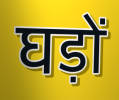
घड़ों